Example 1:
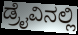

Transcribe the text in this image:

ಡ್ರೈವಿನಲ್ಲಿ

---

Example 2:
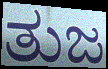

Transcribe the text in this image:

ತುಜ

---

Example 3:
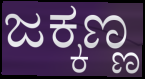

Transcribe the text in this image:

ಜಕ್ಕಣ್ಣ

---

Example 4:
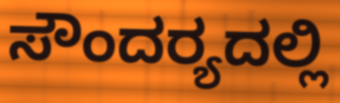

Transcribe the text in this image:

ಸೌಂದರ‍್ಯದಲ್ಲಿ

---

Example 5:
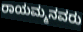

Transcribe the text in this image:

ರಾಯಮ್ಮನವರು